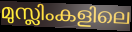
മുസ്ലിംകളിലെ